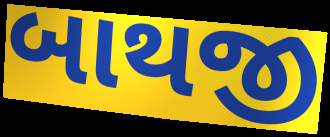
બાથજી